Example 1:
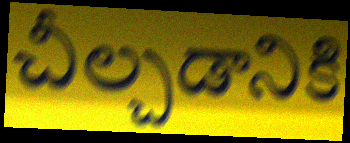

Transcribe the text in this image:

చీల్చడానికి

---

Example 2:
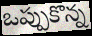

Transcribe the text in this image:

ఒప్పుకొన్న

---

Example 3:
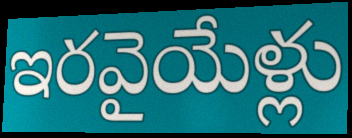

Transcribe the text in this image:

ఇరవైయేళ్లు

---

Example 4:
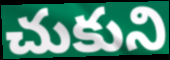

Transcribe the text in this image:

చుకుని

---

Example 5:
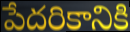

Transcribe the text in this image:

పేదరికానికి